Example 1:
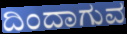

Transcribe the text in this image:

ದಿಂದಾಗುವ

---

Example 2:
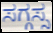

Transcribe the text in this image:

ಸಗ್ಗಸ್ಸ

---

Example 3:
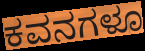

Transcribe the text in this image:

ಕವನಗಳೂ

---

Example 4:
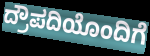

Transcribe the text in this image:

ದ್ರೌಪದಿಯೊಂದಿಗೆ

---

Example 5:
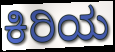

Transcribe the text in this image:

ಕಿರಿಯ